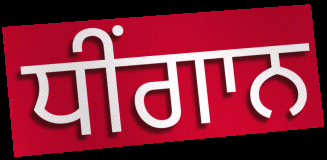
ਧੀਂਗਾਨ